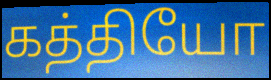
கத்தியோ